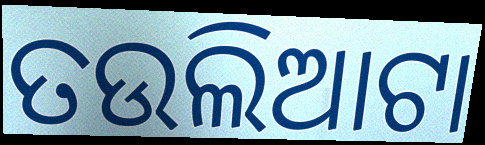
ତଉଲିଆଟା